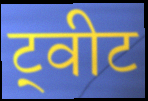
ट्‍वीट